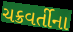
ચક્રવર્તીના